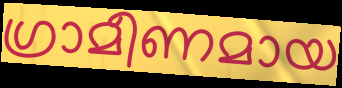
ഗ്രാമീണമായ